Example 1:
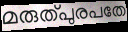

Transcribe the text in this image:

മരുത്പുരപതേ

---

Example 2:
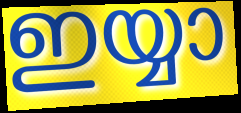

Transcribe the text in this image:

ഇയ്യാ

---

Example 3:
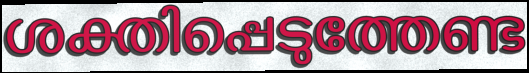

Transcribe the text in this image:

ശക്തിപ്പെടുത്തേണ്ട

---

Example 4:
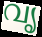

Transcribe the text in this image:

വൃ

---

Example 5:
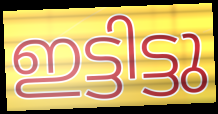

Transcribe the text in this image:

ഇട്ടിട്ടു